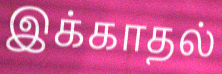
இக்காதல்